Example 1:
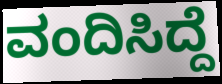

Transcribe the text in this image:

ವಂದಿಸಿದ್ದೆ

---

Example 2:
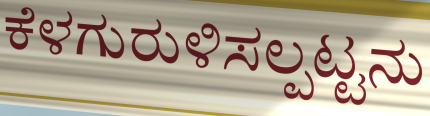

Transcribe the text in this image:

ಕೆಳಗುರುಳಿಸಲ್ಪಟ್ಟನು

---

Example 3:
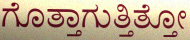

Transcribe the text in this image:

ಗೊತ್ತಾಗುತ್ತಿತ್ತೋ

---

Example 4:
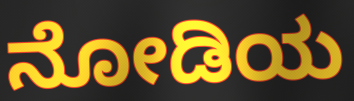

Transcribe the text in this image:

ನೋಡಿಯ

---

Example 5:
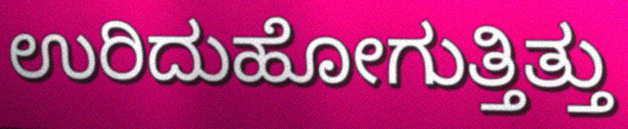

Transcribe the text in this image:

ಉರಿದುಹೋಗುತ್ತಿತ್ತು